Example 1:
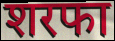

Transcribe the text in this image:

शरफा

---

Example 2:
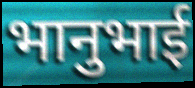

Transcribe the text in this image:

भानुभाई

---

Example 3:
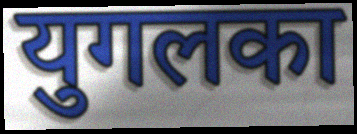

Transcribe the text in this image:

युगलका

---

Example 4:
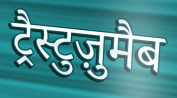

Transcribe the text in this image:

ट्रैस्टुज़ुमैब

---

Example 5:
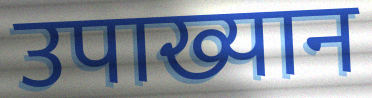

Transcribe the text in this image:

उपाख्यान